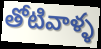
తోటివాళ్ళ